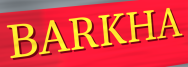
BARKHA